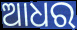
ଆଧର